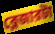
ব্লেজারটা